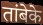
तांबेके